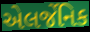
એલર્જેનિક